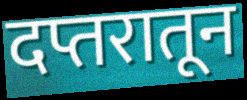
दप्तरातून